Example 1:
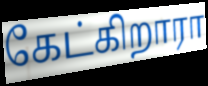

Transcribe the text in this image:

கேட்கிறாரா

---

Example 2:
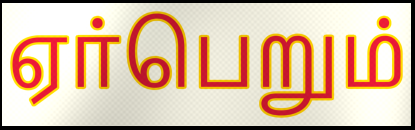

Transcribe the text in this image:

ஏர்பெறும்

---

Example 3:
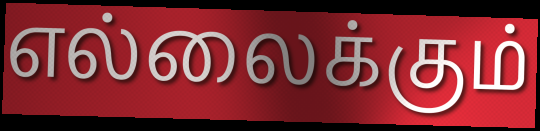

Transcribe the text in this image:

எல்லைக்கும்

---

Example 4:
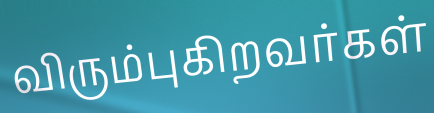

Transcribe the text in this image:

விரும்புகிறவர்கள்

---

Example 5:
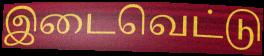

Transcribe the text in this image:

இடைவெட்டு